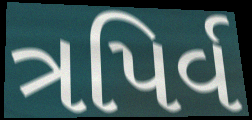
ત્રપિર્વ